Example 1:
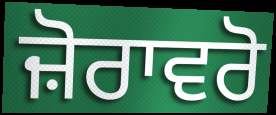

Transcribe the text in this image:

ਜ਼ੋਰਾਵਰੋ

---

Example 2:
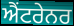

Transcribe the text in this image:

ਐਂਟਰੇਨਰ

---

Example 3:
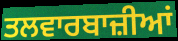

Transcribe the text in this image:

ਤਲਵਾਰਬਾਜ਼ੀਆਂ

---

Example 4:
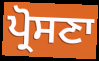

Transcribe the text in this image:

ਪ੍ਰੋਸਣਾ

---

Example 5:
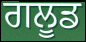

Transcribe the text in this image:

ਗਲੂਡ